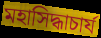
মহাসিদ্ধাচার্য